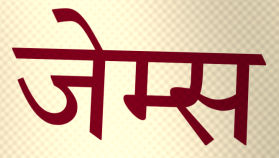
जेम्स